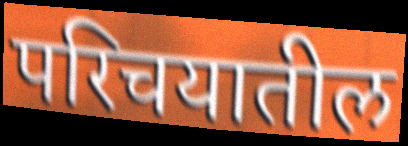
परिचयातील